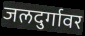
जलदुर्गावर